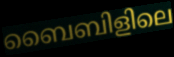
ബൈബിളിലെ